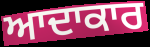
ਆਦਾਕਾਰ